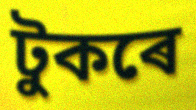
টুকৰে